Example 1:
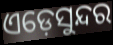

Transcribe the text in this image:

ଏଡ଼େସୁନ୍ଦର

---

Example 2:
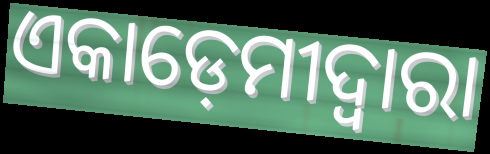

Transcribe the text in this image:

ଏକାଡ଼େମୀଦ୍ୱାରା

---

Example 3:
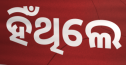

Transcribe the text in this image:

ହିଁଥିଲେ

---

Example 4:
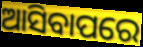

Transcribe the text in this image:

ଆସିବାପରେ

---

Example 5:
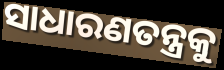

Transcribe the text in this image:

ସାଧାରଣତନ୍ତ୍ରକୁ